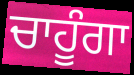
ਚਾਹੂੰਗਾ